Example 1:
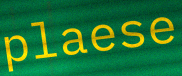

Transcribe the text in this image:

plaese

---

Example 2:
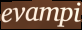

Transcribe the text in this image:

evampi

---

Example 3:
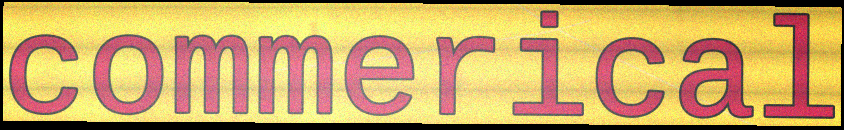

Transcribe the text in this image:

commerical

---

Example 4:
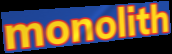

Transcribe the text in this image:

monolith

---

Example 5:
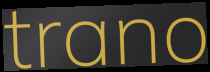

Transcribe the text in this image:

trano